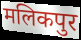
मलिकपुर